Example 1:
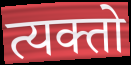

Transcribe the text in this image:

त्यक्तो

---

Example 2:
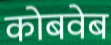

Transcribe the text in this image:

कोबवेब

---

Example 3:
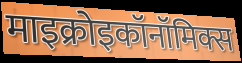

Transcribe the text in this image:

माइक्रोइकॉनॉमिक्स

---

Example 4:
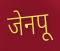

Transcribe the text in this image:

जेनपू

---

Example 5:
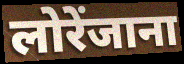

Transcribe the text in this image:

लोरेंजाना